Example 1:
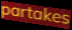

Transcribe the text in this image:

partakes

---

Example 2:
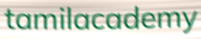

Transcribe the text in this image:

tamilacademy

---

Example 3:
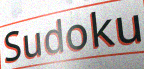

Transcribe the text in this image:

Sudoku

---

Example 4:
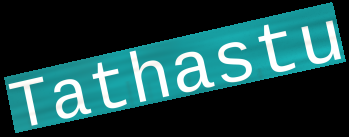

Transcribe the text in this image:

Tathastu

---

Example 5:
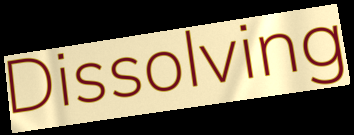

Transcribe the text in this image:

Dissolving